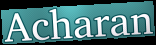
Acharan